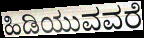
ಹಿಡಿಯುವವರೆ